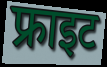
फ्राइट